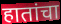
हातांचा